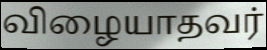
விழையாதவர்